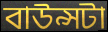
বাউন্সটা